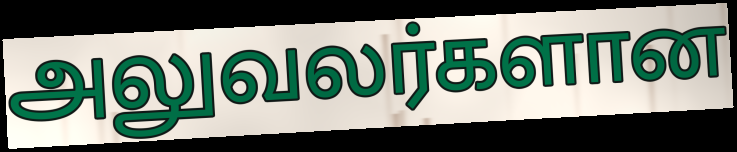
அலுவலர்களான